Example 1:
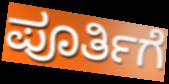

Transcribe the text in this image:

ಪೂರ್ತಿಗೆ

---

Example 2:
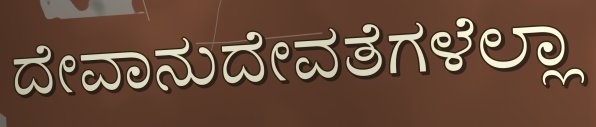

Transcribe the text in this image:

ದೇವಾನುದೇವತೆಗಳೆಲ್ಲಾ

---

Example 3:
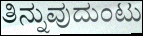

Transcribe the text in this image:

ತಿನ್ನುವುದುಂಟು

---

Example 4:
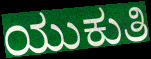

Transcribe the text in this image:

ಯುಕುತಿ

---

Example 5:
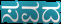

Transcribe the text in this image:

ಸವದ